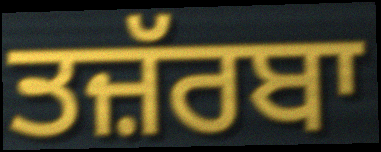
ਤਜ਼ੱਰਬਾ